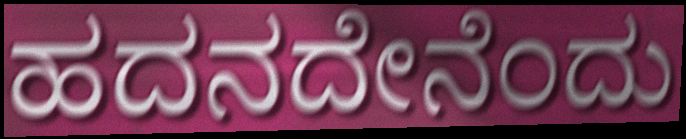
ಹದನದೇನೆಂದು